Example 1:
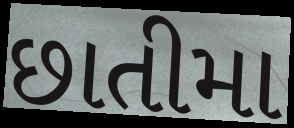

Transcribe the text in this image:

છાતીમા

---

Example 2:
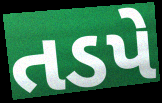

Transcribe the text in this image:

તડપે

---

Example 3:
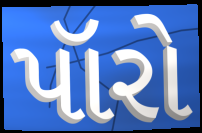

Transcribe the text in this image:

પૉરો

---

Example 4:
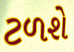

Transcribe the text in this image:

ટળશે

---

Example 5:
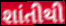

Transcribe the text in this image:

શાંતીથી